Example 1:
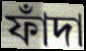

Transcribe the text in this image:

ফাঁদা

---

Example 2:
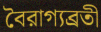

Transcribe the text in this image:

বৈরাগ্যব্রতী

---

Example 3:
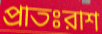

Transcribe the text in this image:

প্রাতঃরাশ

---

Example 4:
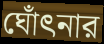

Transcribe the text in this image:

ঘোঁৎনার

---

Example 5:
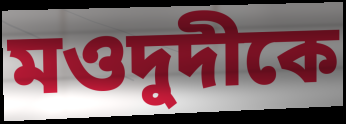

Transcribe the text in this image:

মওদুদীকে